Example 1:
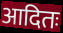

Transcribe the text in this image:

आदितः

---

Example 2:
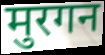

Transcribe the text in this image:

मुरगन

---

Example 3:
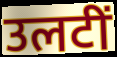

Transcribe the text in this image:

उलटीं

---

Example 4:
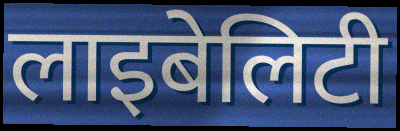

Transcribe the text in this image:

लाइबेलिटी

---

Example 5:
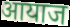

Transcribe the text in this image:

आयाज